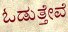
ಓಡುತ್ತೇವೆ